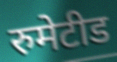
रुमेटीड